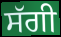
ਸੱਗੀ